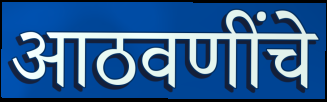
आठवणींचे